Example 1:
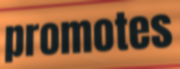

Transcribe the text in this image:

promotes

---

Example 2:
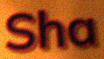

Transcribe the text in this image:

Sha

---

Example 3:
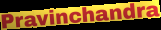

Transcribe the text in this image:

Pravinchandra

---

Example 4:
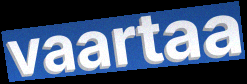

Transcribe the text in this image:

vaartaa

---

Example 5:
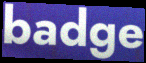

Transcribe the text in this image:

badge